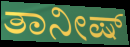
ತಾನೀಷ್